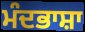
ਮੰਦਭਾਸ਼ਾ